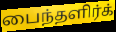
பைந்தளிர்க்